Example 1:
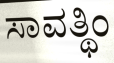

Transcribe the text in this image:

ಸಾವತ್ಥಿಂ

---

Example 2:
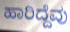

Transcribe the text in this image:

ಹಾರಿದ್ದೆವು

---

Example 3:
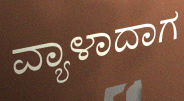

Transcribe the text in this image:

ವ್ಯಾಳಾದಾಗ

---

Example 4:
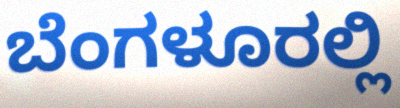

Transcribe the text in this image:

ಬೆಂಗಳೂರಲ್ಲಿ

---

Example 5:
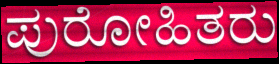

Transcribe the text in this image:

ಪುರೋಹಿತರು